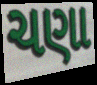
ચણા